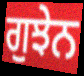
ਗੁਝੇਨ